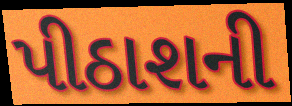
પીઠાશની